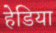
हेडिया